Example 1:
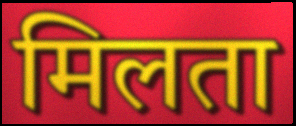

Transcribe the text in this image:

मिलता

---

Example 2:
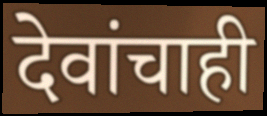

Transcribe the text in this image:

देवांचाही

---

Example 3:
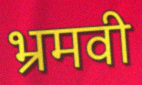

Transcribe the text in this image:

भ्रमवी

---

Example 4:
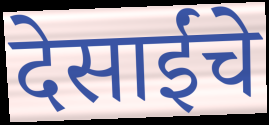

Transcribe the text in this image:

देसाईंचे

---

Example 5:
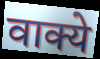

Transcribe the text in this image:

वाक्ये